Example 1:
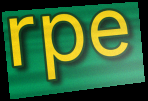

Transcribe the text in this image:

rpe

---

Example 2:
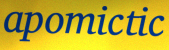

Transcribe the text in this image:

apomictic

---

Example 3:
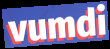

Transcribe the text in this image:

vumdi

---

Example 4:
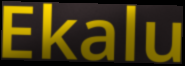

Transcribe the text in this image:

Ekalu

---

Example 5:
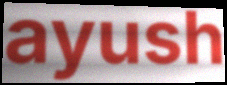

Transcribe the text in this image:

ayush